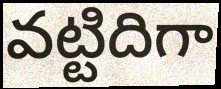
వట్టిదిగా